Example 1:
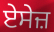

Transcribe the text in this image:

ਏਸੇਜ਼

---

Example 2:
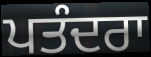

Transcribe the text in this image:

ਪਤੰਦਰਾ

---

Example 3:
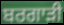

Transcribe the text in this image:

ਬਰਗਾੜੀ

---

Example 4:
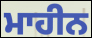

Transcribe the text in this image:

ਮਾਹੀਨ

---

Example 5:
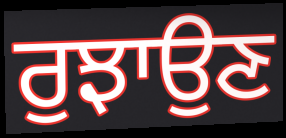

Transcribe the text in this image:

ਰੁਝਾਉਣ